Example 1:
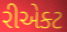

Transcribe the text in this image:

રીએક્ટ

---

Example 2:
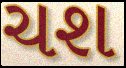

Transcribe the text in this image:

ચશ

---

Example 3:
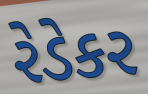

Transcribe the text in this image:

રેડેકર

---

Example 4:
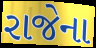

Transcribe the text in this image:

રાજેના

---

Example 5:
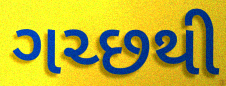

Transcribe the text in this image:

ગચ્છથી